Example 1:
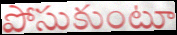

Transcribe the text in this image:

పోసుకుంటూ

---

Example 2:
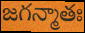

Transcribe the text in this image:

జగన్మాతః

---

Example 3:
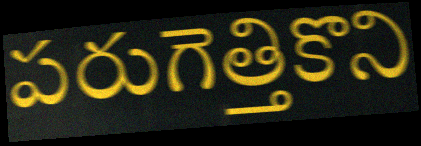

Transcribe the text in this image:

పరుగెత్తికొని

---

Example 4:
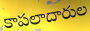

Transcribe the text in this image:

కాపలాదారుల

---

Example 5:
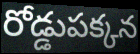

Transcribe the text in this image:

రోడ్డుపక్కన